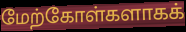
மேற்கோள்களாகக்